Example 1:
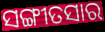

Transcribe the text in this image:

ସଙ୍ଗୀତସାର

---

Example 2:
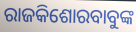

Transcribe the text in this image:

ରାଜକିଶୋରବାବୁଙ୍କ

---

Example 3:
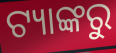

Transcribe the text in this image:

ଟ୍ୟାଙ୍କରୁ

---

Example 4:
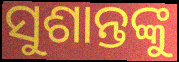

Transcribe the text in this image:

ସୁଶାନ୍ତଙ୍କୁ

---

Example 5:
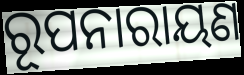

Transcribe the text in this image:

ରୂପନାରାୟଣ